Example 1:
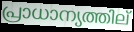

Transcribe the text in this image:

പ്രാധാന്യത്തില്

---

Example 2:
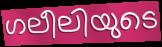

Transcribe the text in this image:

ഗലീലിയുടെ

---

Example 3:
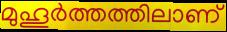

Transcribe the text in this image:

മുഹൂർത്തത്തിലാണ്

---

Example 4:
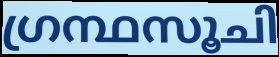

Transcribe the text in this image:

ഗ്രന്ഥസൂചി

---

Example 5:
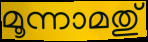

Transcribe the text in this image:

മൂന്നാമതു്